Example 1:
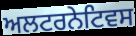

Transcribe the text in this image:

ਅਲਟਰਨੇਟਿਵਸ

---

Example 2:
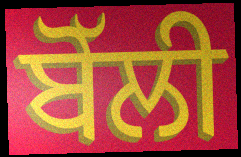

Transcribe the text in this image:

ਬੋੱਲੀ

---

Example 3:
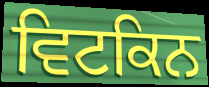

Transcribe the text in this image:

ਵਿਟਕਿਨ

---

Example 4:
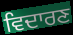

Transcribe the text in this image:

ਵਿਦਾਰਣ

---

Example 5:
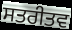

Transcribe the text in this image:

ਸਤਰੀਤਵ